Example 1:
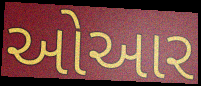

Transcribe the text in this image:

ઓઆર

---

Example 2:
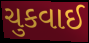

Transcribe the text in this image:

ચુકવાઈ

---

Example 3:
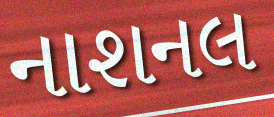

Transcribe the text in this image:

નાશનલ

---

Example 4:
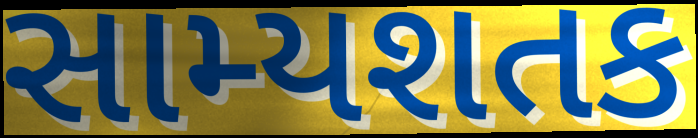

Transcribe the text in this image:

સામ્યશતક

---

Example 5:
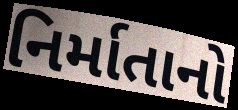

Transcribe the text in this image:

નિર્માતાનો